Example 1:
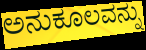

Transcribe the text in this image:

ಅನುಕೂಲವನ್ನು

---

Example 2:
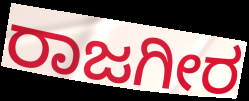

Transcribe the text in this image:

ರಾಜಗೀರ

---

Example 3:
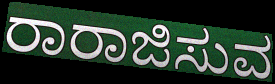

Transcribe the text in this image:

ರಾರಾಜಿಸುವ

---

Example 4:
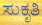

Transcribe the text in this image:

ಸುಕೃತಿ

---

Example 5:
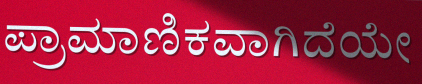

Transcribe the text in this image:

ಪ್ರಾಮಾಣಿಕವಾಗಿದೆಯೇ